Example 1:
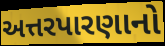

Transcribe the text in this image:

અત્તરપારણાનો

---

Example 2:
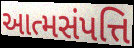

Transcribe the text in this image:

આત્મસંપત્તિ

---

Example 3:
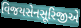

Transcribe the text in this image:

વિજયસેનસૂરિજીએ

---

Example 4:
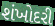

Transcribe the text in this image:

શંખોદરી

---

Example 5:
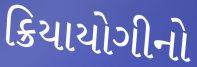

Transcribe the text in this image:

ક્રિયાયોગીનો